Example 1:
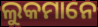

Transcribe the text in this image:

ଲୁକମାନେ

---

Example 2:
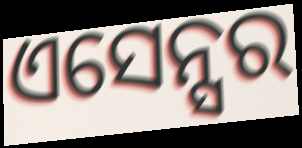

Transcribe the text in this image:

ଏସେନ୍ସର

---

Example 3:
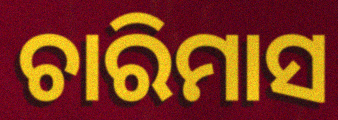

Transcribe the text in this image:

ଚାରିମାସ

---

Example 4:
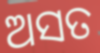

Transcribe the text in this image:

ଅସତ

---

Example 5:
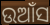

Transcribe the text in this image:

ଉଆଁସ